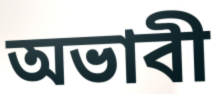
অভাবী